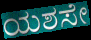
ಯಶಸೇ